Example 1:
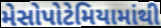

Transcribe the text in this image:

મેસોપોટેમિયામાંથી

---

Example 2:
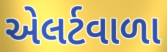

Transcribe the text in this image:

એલર્ટવાળા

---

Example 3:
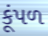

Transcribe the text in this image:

કૂંપળ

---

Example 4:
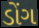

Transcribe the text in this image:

ડોંગ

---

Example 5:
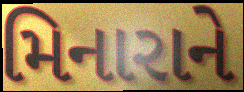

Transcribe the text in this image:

મિનારાને